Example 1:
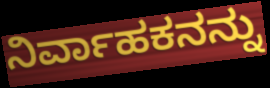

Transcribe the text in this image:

ನಿರ್ವಾಹಕನನ್ನು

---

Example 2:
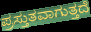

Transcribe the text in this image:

ಪ್ರಸ್ತುತವಾಗುತ್ತದೆ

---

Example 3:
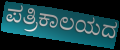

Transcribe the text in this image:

ಪತ್ರಿಕಾಲಯದ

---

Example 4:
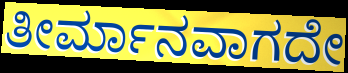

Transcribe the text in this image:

ತೀರ್ಮಾನವಾಗದೇ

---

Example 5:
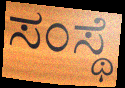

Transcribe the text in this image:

ಸಂಸ್ಥೆ